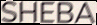
SHEBA